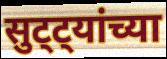
सुट्ट्यांच्या